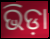
ଭିଡ଼ା